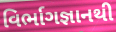
વિર્ભાગજ્ઞાનથી